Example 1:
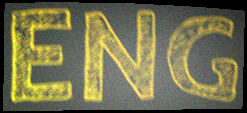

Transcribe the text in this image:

ENG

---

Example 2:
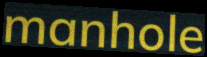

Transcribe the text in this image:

manhole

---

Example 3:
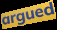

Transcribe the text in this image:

argued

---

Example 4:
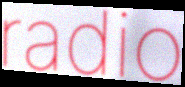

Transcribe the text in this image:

radio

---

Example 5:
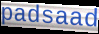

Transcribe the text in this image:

padsaad